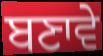
ਬਣਾਵੇ